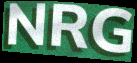
NRG